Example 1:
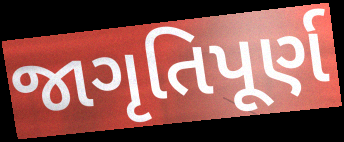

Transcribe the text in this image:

જાગૃતિપૂર્ણ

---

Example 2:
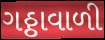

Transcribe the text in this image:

ગઠ્ઠાવાળી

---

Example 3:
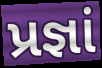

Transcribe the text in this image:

પ્રજ્ઞાં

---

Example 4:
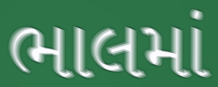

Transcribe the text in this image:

ભાલમાં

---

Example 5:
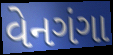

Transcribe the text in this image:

વેનગંગા